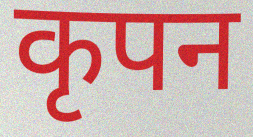
कृपन